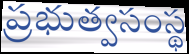
ప్రభుత్వసంస్థ